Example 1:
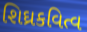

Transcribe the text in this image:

શિઘ્રકવિત્વ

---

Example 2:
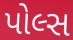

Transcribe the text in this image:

પોલ્સ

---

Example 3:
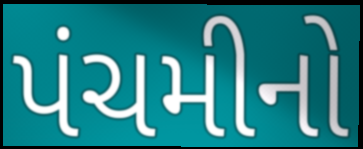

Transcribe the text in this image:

પંચમીનો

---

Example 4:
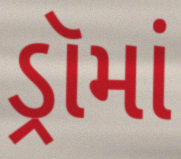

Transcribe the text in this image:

ડ્રૉમાં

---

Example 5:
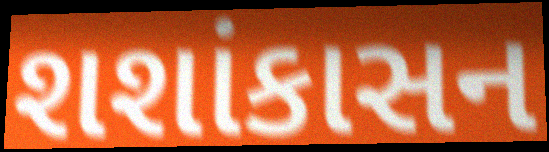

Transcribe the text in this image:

શશાંકાસન